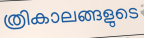
ത്രികാലങ്ങളുടെ